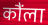
कौंला